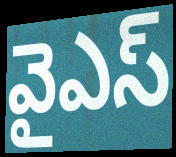
వైఎస్